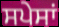
ਸਪੇਸਾਂ